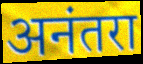
अनंतरा